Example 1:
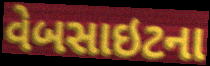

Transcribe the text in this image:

વેબસાઇટના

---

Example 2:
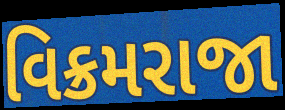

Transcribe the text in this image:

વિક્રમરાજા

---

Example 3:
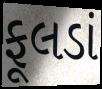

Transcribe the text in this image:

ફૂલડાં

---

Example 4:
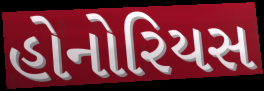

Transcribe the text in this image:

હોનોરિયસ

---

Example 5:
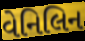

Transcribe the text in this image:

વેનિલિન